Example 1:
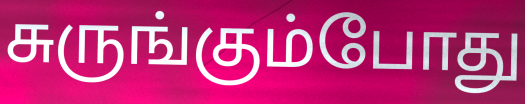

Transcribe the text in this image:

சுருங்கும்போது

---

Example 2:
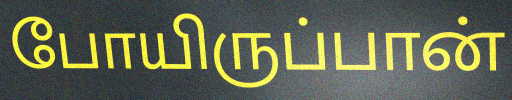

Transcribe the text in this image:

போயிருப்பான்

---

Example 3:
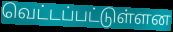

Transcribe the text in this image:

வெட்டப்பட்டுள்ளன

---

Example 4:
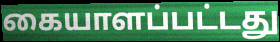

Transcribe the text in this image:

கையாளப்பட்டது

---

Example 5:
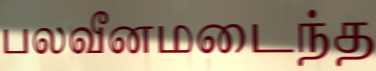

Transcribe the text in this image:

பலவீனமடைந்த